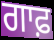
ਗਾਫ਼